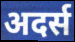
अदर्स